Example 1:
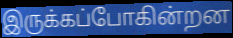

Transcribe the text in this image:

இருக்கப்போகின்றன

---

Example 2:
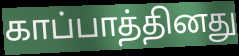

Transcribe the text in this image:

காப்பாத்தினது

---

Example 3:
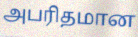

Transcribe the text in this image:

அபரிதமான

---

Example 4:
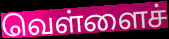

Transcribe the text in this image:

வெள்ளைச்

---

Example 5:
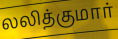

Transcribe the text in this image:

லலித்குமார்